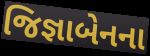
જિજ્ઞાબેનના